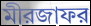
মীরজাফর